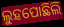
ଲୁହପୋଛିଲି